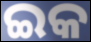
ଇକ